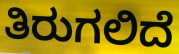
ತಿರುಗಲಿದೆ